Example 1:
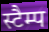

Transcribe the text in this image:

स्टैम्प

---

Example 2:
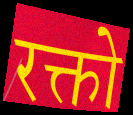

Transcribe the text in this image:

रक्तो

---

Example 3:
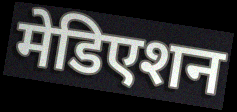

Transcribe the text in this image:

मेडिएशन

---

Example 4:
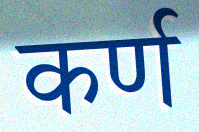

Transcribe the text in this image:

कर्ण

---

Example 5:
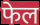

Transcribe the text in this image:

फेल